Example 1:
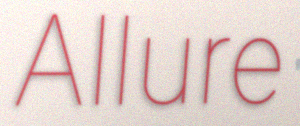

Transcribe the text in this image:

Allure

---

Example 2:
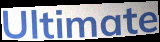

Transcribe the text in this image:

Ultimate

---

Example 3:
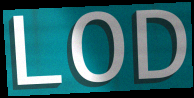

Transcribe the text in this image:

LOD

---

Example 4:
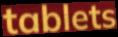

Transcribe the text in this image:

tablets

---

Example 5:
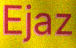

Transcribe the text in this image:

Ejaz